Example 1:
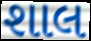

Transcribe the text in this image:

શાલ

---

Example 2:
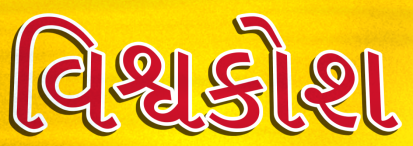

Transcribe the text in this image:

વિશ્વકોશ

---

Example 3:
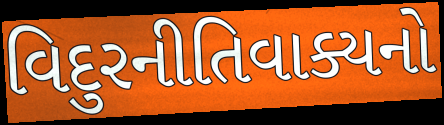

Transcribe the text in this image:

વિદુરનીતિવાક્યનો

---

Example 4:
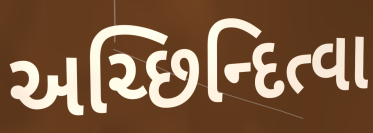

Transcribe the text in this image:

અચ્છિન્દિત્વા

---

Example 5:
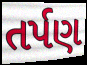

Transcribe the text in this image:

તર્પણ